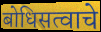
बोधिसत्वाचे